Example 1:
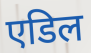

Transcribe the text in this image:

एडिल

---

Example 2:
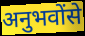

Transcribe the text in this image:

अनुभवोंसे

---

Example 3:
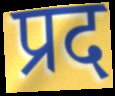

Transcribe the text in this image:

प्रद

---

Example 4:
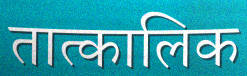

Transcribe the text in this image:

तात्कालिक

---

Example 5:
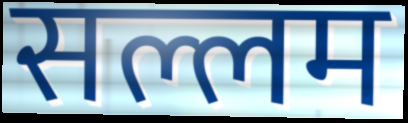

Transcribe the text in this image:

सल्‍लम